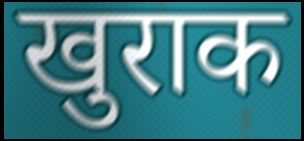
खुराक